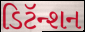
ડિટૅન્શન